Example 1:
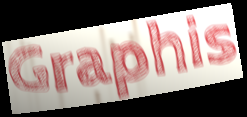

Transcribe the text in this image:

Graphis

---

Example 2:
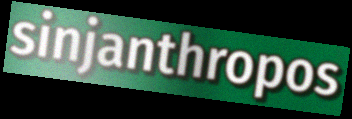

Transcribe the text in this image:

sinjanthropos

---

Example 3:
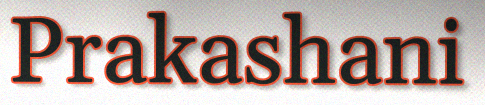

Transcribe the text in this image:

Prakashani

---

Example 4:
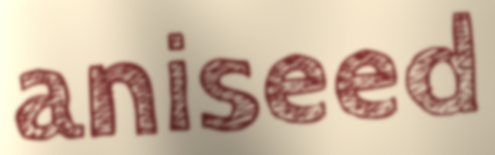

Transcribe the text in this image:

aniseed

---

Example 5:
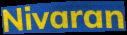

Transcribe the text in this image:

Nivaran